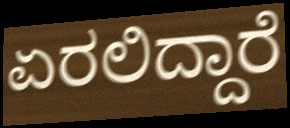
ಏರಲಿದ್ದಾರೆ